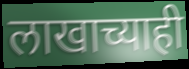
लाखाच्याही